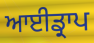
ਆਈਡ੍ਰਾਪ